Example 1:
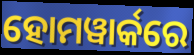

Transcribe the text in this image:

ହୋମୱାର୍କରେ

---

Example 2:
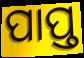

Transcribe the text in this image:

ପାପ୍ତ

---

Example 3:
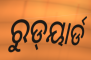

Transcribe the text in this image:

ରୁଡ୍‌ୟାର୍ଡ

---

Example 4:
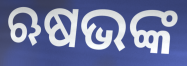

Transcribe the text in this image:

ଋଷଭଙ୍କ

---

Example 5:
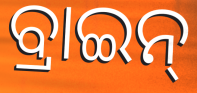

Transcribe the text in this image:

ବ୍ରାଇନ୍